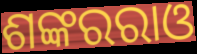
ଶଙ୍କରରାଓ